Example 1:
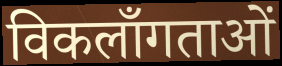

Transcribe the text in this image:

विकलाँगताओं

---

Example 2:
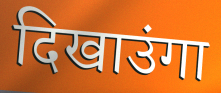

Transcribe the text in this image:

दिखाउंगा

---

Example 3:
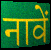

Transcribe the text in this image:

नावें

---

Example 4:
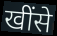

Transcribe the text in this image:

खींसे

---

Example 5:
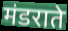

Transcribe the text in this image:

मंडराते